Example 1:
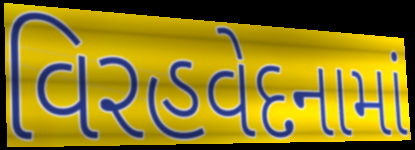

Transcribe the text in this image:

વિરહવેદનામાં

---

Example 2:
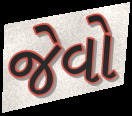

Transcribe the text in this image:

જેવો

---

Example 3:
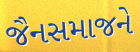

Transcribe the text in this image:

જૈનસમાજને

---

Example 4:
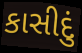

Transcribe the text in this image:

કાસીદું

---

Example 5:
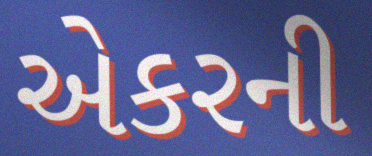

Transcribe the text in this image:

એકરની